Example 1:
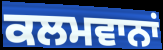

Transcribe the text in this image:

ਕਲਮਵਾਨਾਂ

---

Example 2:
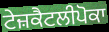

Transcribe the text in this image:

ਟੇਜ਼ਕੈਟਲੀਪੋਕਾ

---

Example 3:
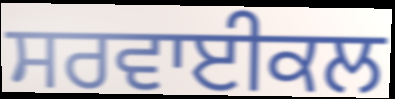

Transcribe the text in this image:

ਸਰਵਾਈਕਲ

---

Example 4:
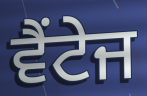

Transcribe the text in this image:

ਵੈਂਟੇਜ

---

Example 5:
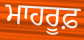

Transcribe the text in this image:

ਮਾਹਰੂਫ਼